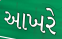
આખરે